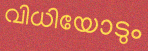
വിധിയോടും